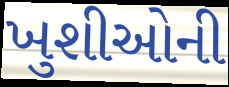
ખુશીઓની